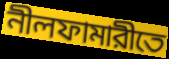
নীলফামারীতে